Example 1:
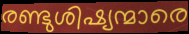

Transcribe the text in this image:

രണ്ടുശിഷ്യന്മാരെ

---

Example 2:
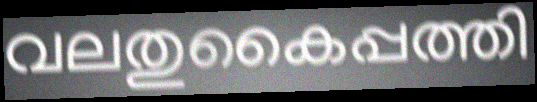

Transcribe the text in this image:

വലതുകൈപ്പത്തി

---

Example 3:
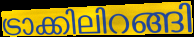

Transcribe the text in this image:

ട്രാക്കിലിറങ്ങി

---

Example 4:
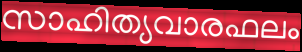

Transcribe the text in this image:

സാഹിത്യവാരഫലം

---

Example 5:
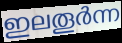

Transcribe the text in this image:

ഇലതൂർന്ന